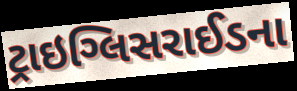
ટ્રાઇગ્લિસરાઈડના